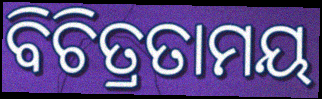
ବିଚିତ୍ରତାମୟ